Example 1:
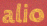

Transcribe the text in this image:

alio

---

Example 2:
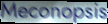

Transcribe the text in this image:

Meconopsis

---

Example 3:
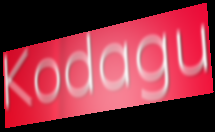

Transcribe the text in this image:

Kodagu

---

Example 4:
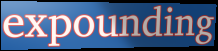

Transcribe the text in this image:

expounding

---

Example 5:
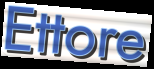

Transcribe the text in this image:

Ettore